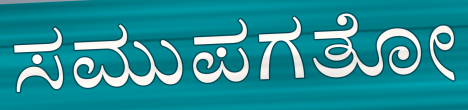
ಸಮುಪಗತೋ